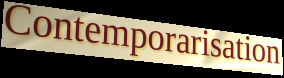
Contemporarisation